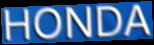
HONDA